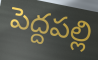
పెద్దపల్లి